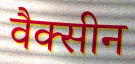
वैक्सीन